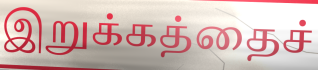
இறுக்கத்தைச்